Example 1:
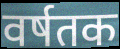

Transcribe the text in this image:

वर्षतक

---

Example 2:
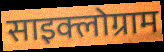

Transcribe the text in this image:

साइक्लोग्राम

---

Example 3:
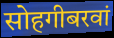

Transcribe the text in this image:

सोहगीबरवां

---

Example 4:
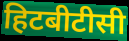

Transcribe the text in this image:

हिटबीटीसी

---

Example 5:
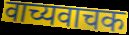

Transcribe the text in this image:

वाच्यवाचक